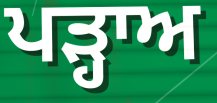
ਪੜ੍ਹਾਅ